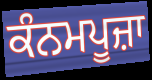
ਕੰਨਮਪੂਜ਼ਾ